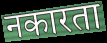
नकारता